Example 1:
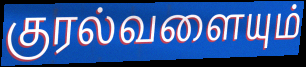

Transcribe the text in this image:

குரல்வளையும்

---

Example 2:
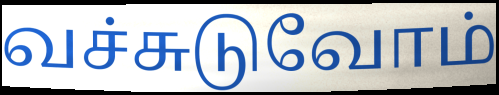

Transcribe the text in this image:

வச்சுடுவோம்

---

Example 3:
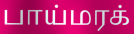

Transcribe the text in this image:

பாய்மரக்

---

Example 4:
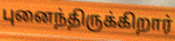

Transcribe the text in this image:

புனைந்திருக்கிறார்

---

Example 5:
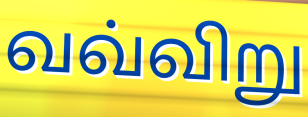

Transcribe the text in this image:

வவ்விறு